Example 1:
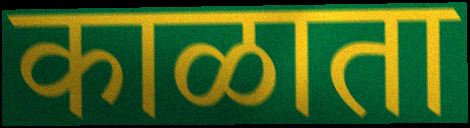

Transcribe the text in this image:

काळाता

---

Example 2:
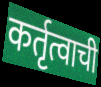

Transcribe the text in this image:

कर्तृत्वाची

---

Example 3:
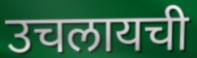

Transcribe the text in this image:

उचलायची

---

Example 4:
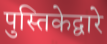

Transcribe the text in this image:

पुस्तिकेद्वारे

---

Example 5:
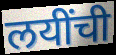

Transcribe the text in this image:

लयींची